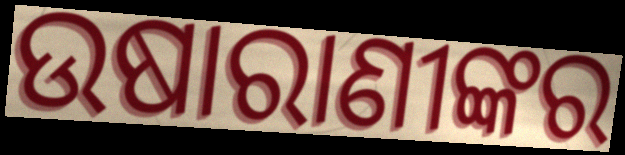
ଉଷାରାଣୀଙ୍କର